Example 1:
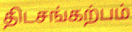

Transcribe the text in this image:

திடசங்கற்பம்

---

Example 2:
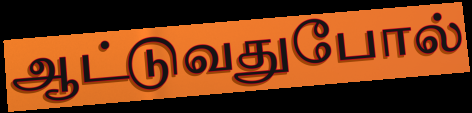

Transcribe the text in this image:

ஆட்டுவதுபோல்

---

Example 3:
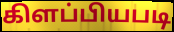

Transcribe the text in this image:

கிளப்பியபடி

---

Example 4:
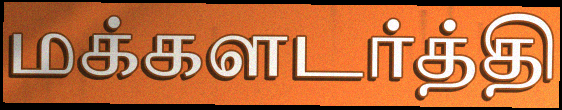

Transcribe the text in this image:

மக்களடர்த்தி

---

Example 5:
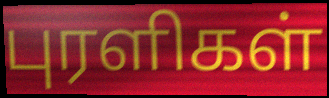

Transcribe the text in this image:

புரளிகள்